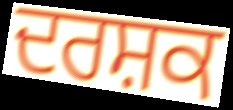
ਦਰਸ਼ਕ